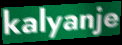
kalyanje